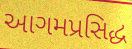
આગમપ્રસિદ્ધ